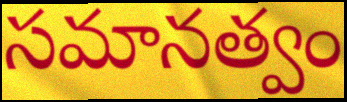
సమానత్వం